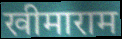
खीमाराम